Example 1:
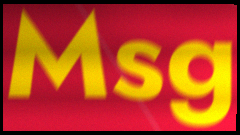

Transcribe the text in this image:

Msg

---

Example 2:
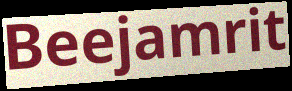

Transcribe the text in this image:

Beejamrit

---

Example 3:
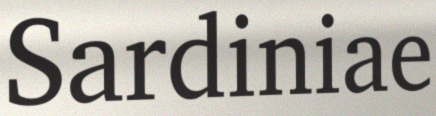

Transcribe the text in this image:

Sardiniae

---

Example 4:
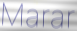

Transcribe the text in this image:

Marar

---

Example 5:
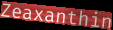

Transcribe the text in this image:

Zeaxanthin